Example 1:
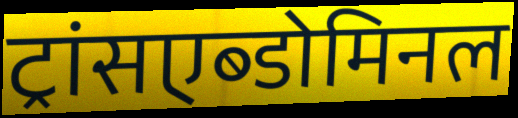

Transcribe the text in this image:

ट्रांसएब्डोमिनल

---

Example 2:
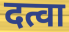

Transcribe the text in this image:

दत्वा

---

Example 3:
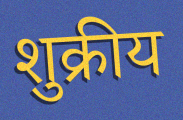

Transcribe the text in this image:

शुक्रीय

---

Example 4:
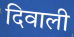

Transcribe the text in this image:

दिवाली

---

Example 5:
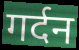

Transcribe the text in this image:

गर्दन